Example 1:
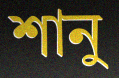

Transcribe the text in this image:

শানু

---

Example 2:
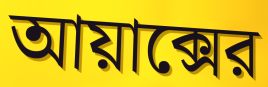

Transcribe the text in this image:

আয়াক্সের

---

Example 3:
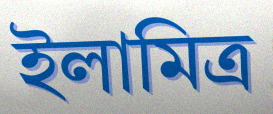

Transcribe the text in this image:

ইলামিত্র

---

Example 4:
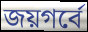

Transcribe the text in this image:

জয়গর্বে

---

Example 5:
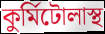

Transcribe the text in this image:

কুর্মিটোলাস্থ